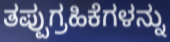
ತಪ್ಪುಗ್ರಹಿಕೆಗಳನ್ನು